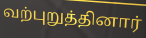
வற்புறுத்தினார்